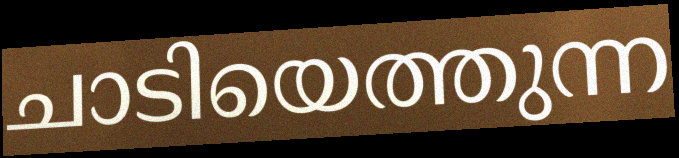
ചാടിയെത്തുന്ന